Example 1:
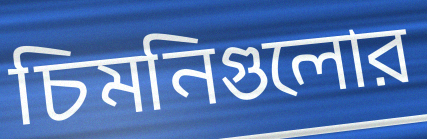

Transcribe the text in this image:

চিমনিগুলোর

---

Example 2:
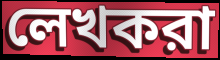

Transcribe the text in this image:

লেখকরা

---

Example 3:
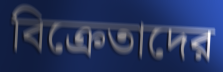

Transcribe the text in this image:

বিক্রেতাদের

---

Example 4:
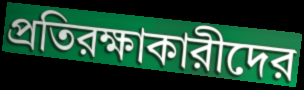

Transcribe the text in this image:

প্রতিরক্ষাকারীদের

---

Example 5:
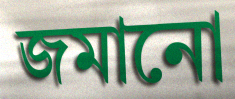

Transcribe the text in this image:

জমানো